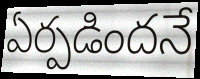
ఏర్పడిందనే